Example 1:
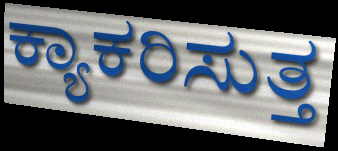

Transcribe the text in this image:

ಕ್ಯಾಕರಿಸುತ್ತ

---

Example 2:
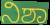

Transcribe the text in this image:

ನಿಶಾ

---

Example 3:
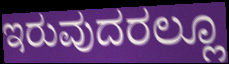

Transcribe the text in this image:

ಇರುವುದರಲ್ಲೂ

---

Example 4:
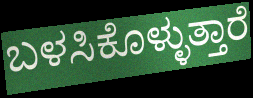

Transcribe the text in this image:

ಬಳಸಿಕೊಳ್ಳುತ್ತಾರೆ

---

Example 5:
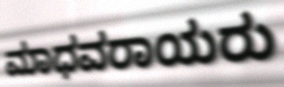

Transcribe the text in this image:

ಮಾಧವರಾಯರು